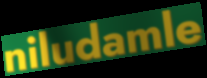
niludamle